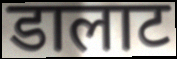
डालाट